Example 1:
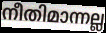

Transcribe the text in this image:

നീതിമാന്നല്ല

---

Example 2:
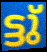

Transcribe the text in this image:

ട്ടു്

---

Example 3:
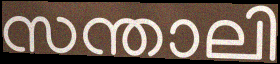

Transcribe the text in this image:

സന്താലി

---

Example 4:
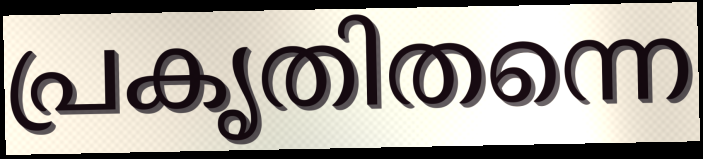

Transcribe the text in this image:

പ്രകൃതിതന്നെ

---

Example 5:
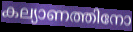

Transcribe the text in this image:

കല്യാണത്തിനോ